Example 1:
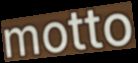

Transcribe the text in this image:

motto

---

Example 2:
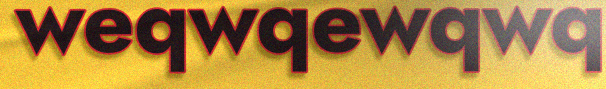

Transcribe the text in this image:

weqwqewqwq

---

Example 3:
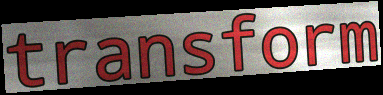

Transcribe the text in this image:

transform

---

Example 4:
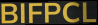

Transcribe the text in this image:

BIFPCL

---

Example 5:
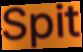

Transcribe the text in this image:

Spit